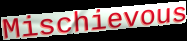
Mischievous